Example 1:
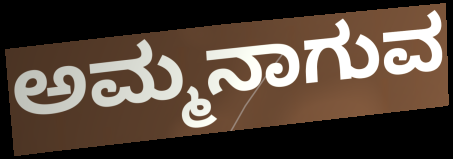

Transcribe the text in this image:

ಅಮ್ಮನಾಗುವ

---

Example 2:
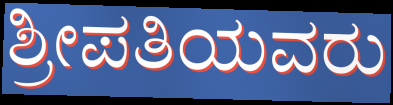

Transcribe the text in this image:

ಶ್ರೀಪತಿಯವರು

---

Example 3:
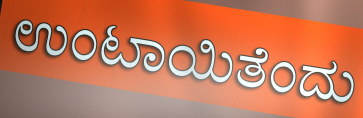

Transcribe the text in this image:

ಉಂಟಾಯಿತೆಂದು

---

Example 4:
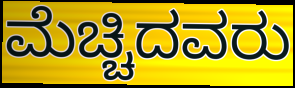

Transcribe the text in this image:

ಮೆಚ್ಚಿದವರು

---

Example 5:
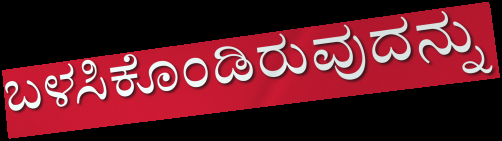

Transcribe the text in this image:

ಬಳಸಿಕೊಂಡಿರುವುದನ್ನು